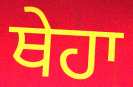
ਥੇਹਾ